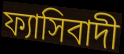
ফ্যাসিবাদী